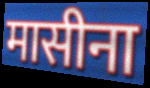
मासीना